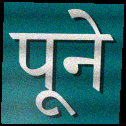
पूने